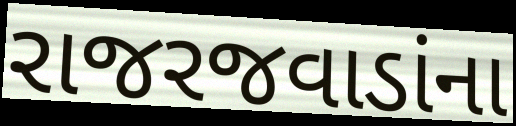
રાજરજવાડાંના